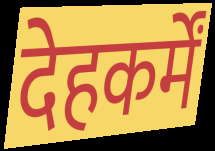
देहकर्में